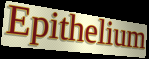
Epithelium